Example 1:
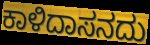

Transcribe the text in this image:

ಕಾಳಿದಾಸನದು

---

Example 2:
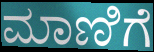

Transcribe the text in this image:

ಮಾಣಿಗೆ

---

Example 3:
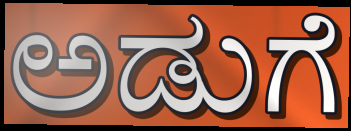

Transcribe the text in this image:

ಅಡುಗೆ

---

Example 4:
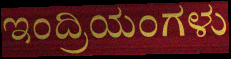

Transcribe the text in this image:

ಇಂದ್ರಿಯಂಗಳು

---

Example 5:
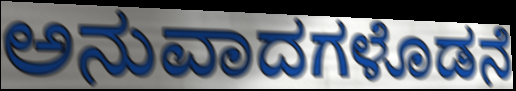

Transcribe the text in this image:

ಅನುವಾದಗಳೊಡನೆ